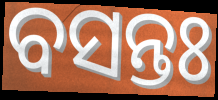
ବସନ୍ତଃ